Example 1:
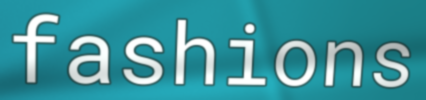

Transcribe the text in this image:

fashions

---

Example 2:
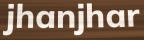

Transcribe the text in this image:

jhanjhar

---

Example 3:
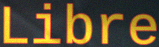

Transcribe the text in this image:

Libre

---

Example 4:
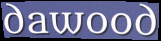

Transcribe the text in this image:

dawood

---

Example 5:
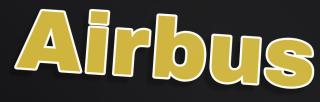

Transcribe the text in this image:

Airbus